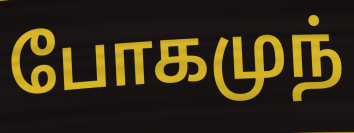
போகமுந்